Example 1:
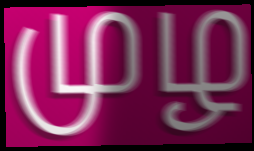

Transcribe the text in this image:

முழ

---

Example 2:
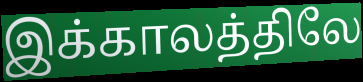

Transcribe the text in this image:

இக்காலத்திலே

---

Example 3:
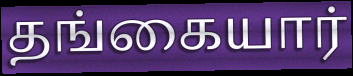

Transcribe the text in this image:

தங்கையார்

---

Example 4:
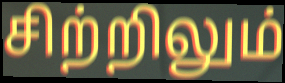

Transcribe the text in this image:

சிற்றிலும்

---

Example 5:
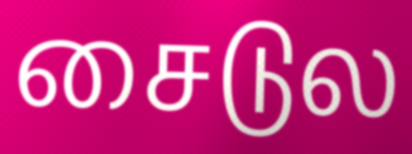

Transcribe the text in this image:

சைடுல